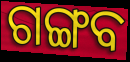
ଗଙ୍ଗବ